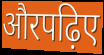
औरपढ़िए